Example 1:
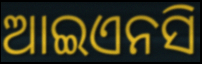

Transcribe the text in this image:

ଆଇଏନସି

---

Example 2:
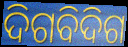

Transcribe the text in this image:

ଦିଗବିଦିଗ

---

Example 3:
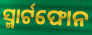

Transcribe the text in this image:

ସ୍ମାର୍ଟଫୋନ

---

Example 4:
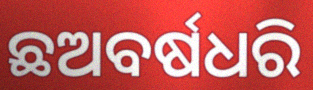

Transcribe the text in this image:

ଛଅବର୍ଷଧରି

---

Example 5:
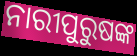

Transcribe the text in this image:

ନାରୀପୁରୁଷଙ୍କ